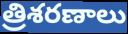
త్రిశరణాలు